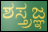
ಶಸ್ತ್ರಜ್ಞ